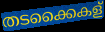
തടക്കൈകള്